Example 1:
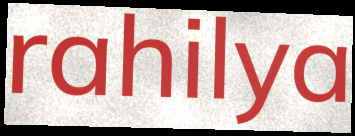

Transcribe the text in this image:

rahilya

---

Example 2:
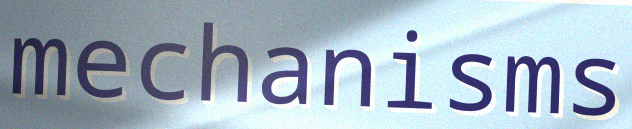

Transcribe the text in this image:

mechanisms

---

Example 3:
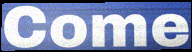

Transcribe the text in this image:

Come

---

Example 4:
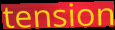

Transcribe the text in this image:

tension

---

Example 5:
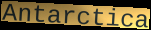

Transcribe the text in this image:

Antarctica